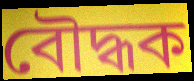
বৌদ্ধক